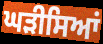
ਘੜੀਸਿਆਂ